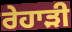
ਰੇਹਾੜੀ